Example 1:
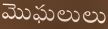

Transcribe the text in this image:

మొఘలులు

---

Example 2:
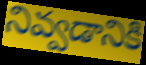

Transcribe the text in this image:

నివ్వడానికి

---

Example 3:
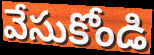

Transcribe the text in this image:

వేసుకోండి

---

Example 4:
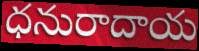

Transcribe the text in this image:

ధనురాదాయ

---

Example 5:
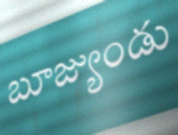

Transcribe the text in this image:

బూజ్యుండు